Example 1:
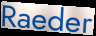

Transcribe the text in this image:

Raeder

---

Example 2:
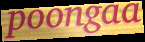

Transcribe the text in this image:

poongaa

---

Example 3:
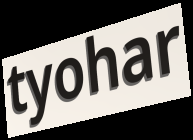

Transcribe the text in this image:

tyohar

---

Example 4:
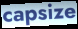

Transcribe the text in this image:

capsize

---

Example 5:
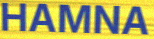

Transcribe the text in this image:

HAMNA